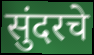
सुंदरचे